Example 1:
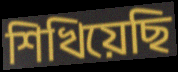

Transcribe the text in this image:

শিখিয়েছি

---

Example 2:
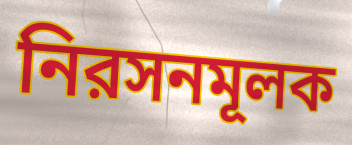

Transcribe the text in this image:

নিরসনমূলক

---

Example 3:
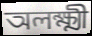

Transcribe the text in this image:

অলক্ষ্মী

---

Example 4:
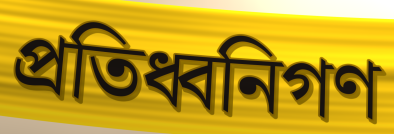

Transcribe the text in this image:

প্রতিধ্বনিগণ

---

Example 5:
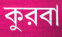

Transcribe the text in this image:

কুরবা